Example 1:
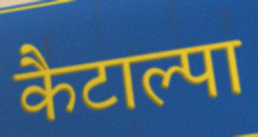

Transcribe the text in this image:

कैटाल्पा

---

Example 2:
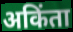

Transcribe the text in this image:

अकिंता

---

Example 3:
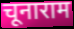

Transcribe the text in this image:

चूनाराम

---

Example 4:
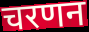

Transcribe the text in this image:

चरणन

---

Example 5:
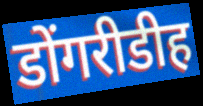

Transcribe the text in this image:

डोंगरीडीह